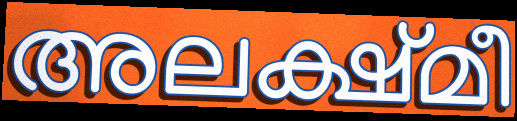
അലക്ഷ്മീ